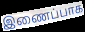
இணைப்பாக